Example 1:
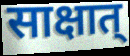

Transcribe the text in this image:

साक्षात्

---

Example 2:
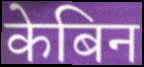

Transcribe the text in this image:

केबिन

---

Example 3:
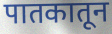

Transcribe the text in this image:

पातकातून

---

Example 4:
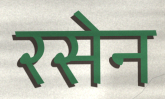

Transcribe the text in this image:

रसेन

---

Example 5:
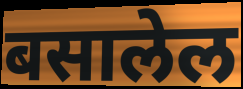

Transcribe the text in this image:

बसालेल